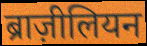
ब्राज़ीलियन